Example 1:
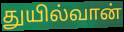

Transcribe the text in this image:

துயில்வான்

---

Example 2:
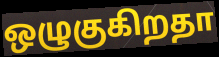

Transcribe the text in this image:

ஒழுகுகிறதா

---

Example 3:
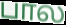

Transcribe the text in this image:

பால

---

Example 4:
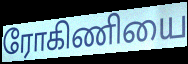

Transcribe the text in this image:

ரோகிணியை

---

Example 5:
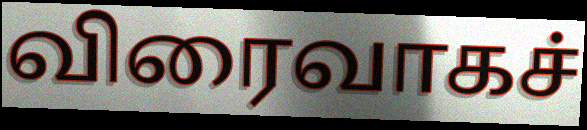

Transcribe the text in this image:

விரைவாகச்